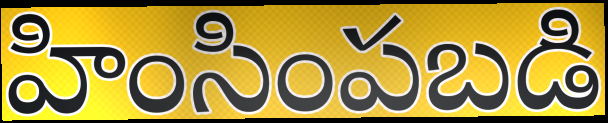
హింసింపబడి